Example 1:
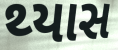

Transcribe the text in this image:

થ્યાસ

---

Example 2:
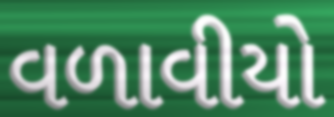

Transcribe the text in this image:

વળાવીયો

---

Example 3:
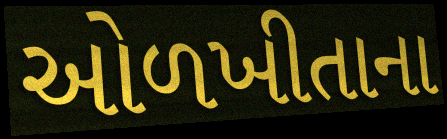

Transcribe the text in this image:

ઓળખીતાના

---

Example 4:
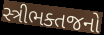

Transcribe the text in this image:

સ્ત્રીભક્તજનો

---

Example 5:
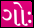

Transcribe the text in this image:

ગોઃ